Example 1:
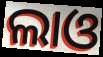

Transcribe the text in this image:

ଲାଓ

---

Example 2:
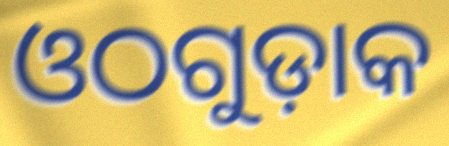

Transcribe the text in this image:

ଓଠଗୁଡ଼ାକ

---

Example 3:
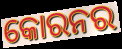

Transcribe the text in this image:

କୋରନର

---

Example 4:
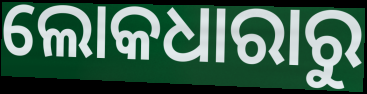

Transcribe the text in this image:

ଲୋକଧାରାରୁ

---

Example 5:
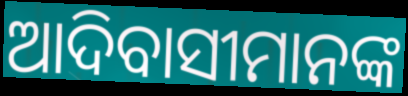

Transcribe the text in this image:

ଆଦିବାସୀମାନଙ୍କ